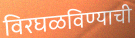
विरघळविण्याची